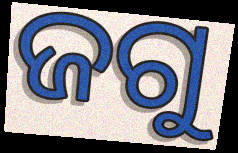
ଜଗୁ